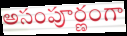
అసంపూర్ణంగా